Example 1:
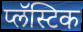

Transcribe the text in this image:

प्लॅस्टिक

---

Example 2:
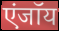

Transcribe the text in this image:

एंजॉय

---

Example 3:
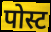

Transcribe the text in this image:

पोस्ट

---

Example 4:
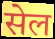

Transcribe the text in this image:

सेल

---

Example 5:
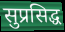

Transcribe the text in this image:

सुप्रसिद्ध